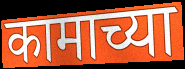
कामाच्या